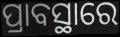
ପ୍ରାବସ୍ଥାରେ